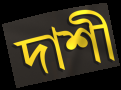
দাশী